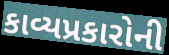
કાવ્યપ્રકારોની